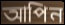
আপিন